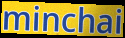
minchai